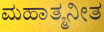
ಮಹಾತ್ಮನೀತ